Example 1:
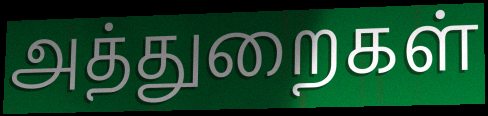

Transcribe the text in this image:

அத்துறைகள்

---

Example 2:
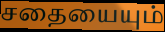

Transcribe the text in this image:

சதையையும்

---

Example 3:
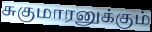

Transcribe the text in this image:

சுகுமாரனுக்கும்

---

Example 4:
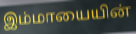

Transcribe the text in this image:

இம்மாயையின்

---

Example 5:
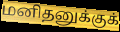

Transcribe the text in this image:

மனிதனுக்குக்